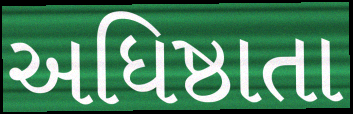
અધિષ્ઠાતા